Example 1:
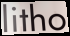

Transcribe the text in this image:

litho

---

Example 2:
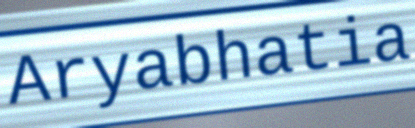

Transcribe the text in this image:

Aryabhatia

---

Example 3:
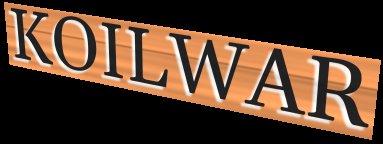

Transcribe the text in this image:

KOILWAR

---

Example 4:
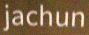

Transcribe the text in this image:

jachun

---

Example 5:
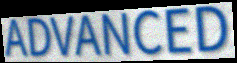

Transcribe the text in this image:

ADVANCED